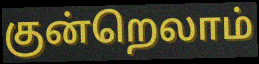
குன்றெலாம்